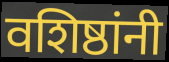
वशिष्ठांनी